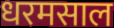
धरमसाल